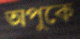
অপুকে